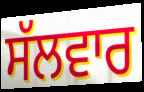
ਸੱਲਵਾਰ